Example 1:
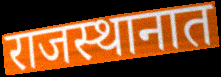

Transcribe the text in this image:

राजस्थानात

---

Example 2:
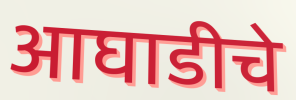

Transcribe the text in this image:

आघाडीचे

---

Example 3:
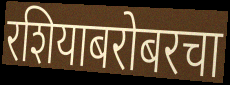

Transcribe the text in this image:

रशियाबरोबरचा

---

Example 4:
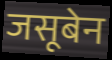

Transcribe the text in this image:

जसूबेन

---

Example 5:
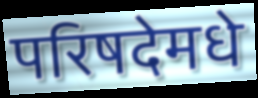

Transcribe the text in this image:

परिषदेमधे